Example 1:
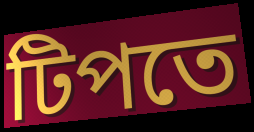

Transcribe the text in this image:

টিপতে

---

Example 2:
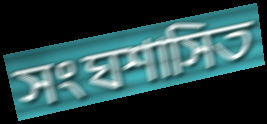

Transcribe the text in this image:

সংঘশাসিত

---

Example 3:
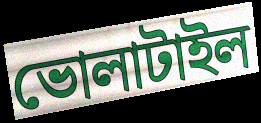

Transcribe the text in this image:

ভোলাটাইল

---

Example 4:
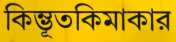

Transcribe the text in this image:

কিম্ভূতকিমাকার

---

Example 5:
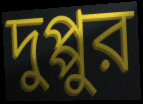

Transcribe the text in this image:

দুপ্পুর